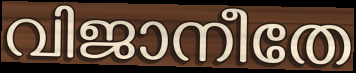
വിജാനീതേ